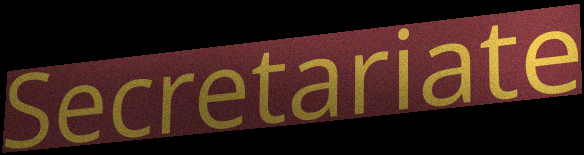
Secretariate